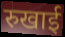
रुखाई